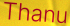
Thanu